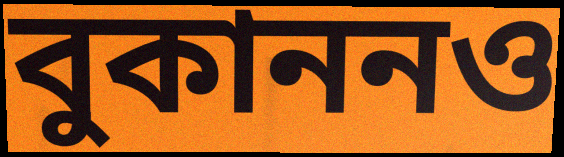
বুকাননও